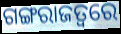
ଗଙ୍ଗରାଜତ୍ୱରେ